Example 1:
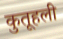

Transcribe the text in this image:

कुतूहली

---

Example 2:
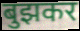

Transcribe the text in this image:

बुझकर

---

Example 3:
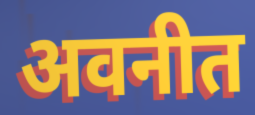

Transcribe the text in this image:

अवनीत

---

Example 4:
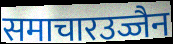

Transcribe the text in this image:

समाचारउज्जैन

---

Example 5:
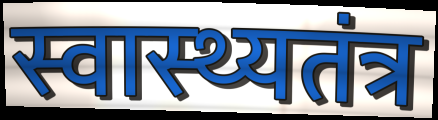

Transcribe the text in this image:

स्वास्थ्यतंत्र